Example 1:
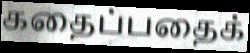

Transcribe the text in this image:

கதைப்பதைக்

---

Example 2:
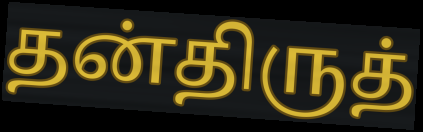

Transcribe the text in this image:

தன்திருத்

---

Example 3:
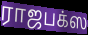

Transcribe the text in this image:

ராஜபக்ஸ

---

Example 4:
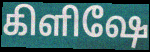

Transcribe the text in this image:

கிளிஷே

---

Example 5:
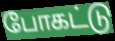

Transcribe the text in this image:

போகட்டு